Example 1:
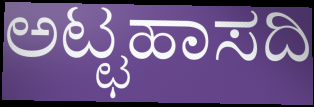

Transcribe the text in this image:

ಅಟ್ಟಹಾಸದಿ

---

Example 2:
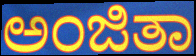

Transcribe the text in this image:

ಅಂಜಿತಾ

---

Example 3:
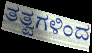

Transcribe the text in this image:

ತತ್ವಗಳಿಂದ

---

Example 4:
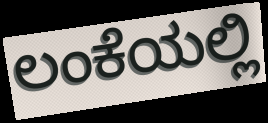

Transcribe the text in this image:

ಲಂಕೆಯಲ್ಲಿ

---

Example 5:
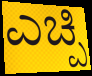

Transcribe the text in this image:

ಎಚ್ಪಿ